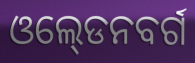
ଓଲ୍‍ଡେନବର୍ଗ